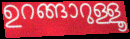
ഉറങ്ങാറുള്ളൂ